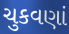
ચુકવણાં